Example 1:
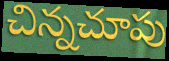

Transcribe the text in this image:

చిన్నచూపు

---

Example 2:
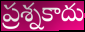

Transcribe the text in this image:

ప్రశ్నకాదు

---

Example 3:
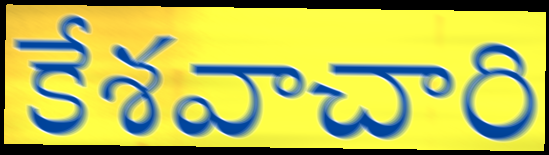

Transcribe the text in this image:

కేశవాచారి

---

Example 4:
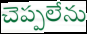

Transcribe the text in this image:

చెప్పలేను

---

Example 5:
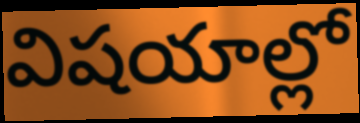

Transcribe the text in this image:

విషయాల్లో